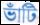
ভাঁটি